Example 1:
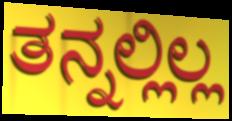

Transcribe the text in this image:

ತನ್ನಲ್ಲಿಲ್ಲ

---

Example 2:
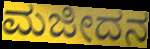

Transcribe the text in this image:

ಮಜೀದನ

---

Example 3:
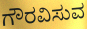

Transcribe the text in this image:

ಗೌರವಿಸುವ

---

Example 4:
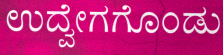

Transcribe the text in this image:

ಉದ್ವೇಗಗೊಂಡು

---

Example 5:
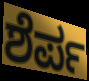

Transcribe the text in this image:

ಶೆರ್ಪ